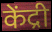
केंद्री